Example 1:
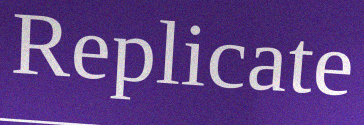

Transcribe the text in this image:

Replicate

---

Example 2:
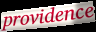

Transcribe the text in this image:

providence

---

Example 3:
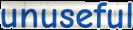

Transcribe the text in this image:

unuseful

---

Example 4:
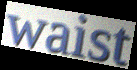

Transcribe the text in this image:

waist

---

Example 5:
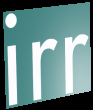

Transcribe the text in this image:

irr